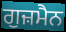
ਗੁਜ਼ਮੈਨ